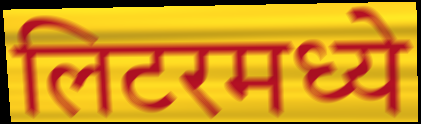
लिटरमध्ये